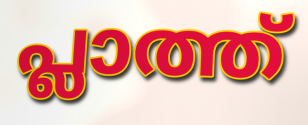
പ്ലാത്ത്